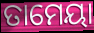
ତାମେୟା